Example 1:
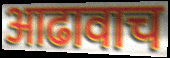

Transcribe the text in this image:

आढावाच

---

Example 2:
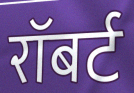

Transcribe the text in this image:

रॉबर्ट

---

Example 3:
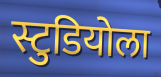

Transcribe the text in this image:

स्टुडियोला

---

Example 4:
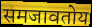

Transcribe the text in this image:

समजावतोय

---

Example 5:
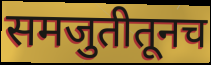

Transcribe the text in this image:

समजुतीतूनच